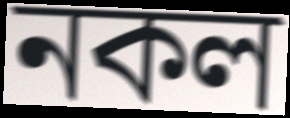
নকল